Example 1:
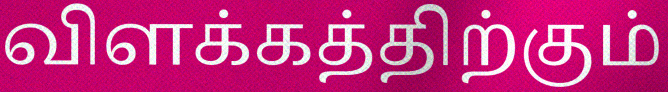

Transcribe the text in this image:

விளக்கத்திற்கும்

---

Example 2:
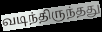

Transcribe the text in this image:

வடிந்திருந்தது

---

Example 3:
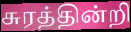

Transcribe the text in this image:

சுரத்தின்றி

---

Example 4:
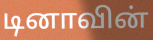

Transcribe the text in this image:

டினாவின்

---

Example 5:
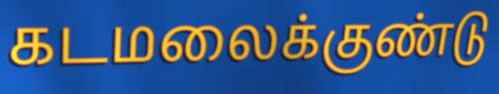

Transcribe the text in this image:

கடமலைக்குண்டு